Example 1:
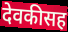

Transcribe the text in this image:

देवकीसह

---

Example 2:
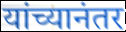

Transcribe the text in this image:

यांच्यानंतर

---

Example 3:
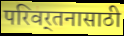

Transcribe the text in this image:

परिवर्तनासाठी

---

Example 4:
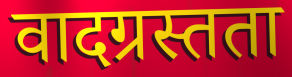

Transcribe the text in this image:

वादग्रस्तता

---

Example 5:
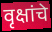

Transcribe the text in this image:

वृक्षांचे